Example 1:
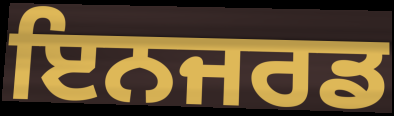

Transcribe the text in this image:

ਇਨਜਰਡ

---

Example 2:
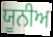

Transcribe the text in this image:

ਯੂਨੀਅ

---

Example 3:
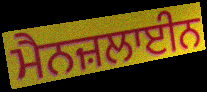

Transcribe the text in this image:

ਮੈਨਜ਼ਲਾਈਨ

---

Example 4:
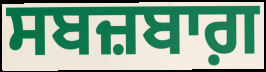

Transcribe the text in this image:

ਸਬਜ਼ਬਾਗ਼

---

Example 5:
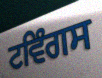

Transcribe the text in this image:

ਟਵਿੰਗਸ